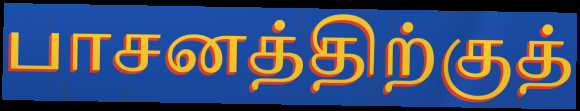
பாசனத்திற்குத்